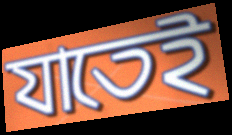
যাতেই